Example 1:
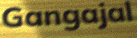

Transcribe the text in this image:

Gangajal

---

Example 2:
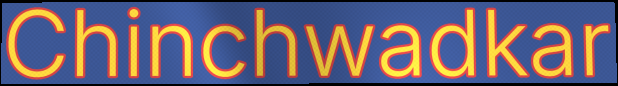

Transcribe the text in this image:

Chinchwadkar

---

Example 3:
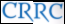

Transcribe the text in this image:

CRRC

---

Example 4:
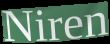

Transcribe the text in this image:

Niren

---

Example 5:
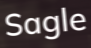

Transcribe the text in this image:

Sagle